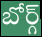
బోర్గ్